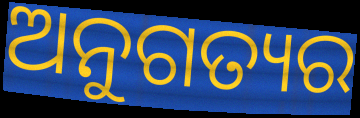
ଅନୁଗତ୍ୟର